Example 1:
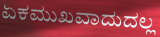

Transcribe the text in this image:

ಏಕಮುಖವಾದುದಲ್ಲ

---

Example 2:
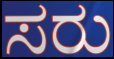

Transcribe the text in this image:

ಸರು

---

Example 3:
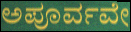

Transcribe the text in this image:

ಅಪೂರ್ವವೇ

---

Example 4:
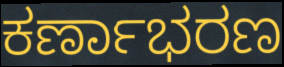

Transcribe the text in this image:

ಕರ್ಣಾಭರಣ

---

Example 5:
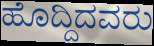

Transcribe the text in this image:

ಹೊದ್ದಿದವರು